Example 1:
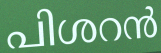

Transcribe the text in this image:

പിശറൻ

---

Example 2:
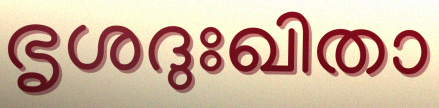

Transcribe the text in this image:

ഭൃശദുഃഖിതാ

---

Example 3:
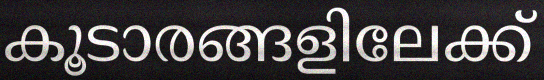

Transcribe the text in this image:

കൂടാരങ്ങളിലേക്ക്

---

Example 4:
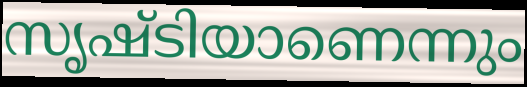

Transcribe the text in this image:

സൃഷ്ടിയാണെന്നും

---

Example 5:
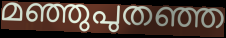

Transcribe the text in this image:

മഞ്ഞുപുതഞ്ഞ